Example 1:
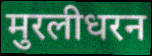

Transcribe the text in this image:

मुरलीधरन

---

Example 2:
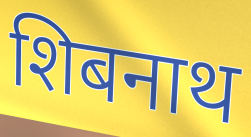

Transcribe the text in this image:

शिबनाथ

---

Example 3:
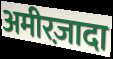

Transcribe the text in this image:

अमीरज़ादा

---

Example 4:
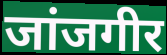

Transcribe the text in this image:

जांजगीर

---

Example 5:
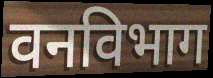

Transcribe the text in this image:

वनविभाग